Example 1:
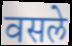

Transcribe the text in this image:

वसले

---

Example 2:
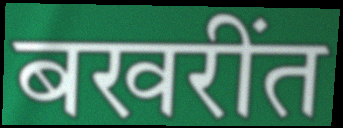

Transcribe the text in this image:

बखरींत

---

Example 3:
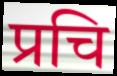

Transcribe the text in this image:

प्रचि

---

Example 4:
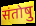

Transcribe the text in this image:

संतोषु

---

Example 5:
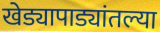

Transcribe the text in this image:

खेड्यापाड्यांतल्या